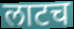
लाटच